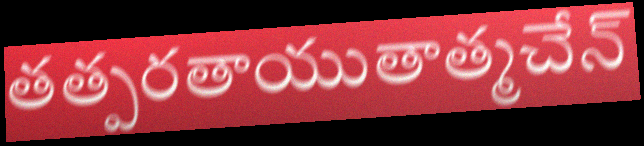
తత్పరతాయుతాత్మచేన్